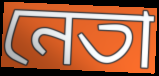
নেতা